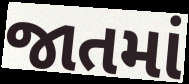
જાતમાં